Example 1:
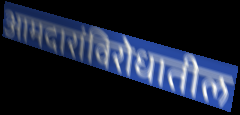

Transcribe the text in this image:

आमदारांविरोधातील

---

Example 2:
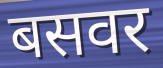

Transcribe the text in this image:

बसवर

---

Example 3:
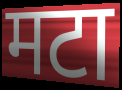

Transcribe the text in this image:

मटा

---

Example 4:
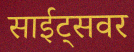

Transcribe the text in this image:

साईट्सवर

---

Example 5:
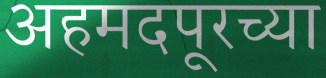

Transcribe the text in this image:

अहमदपूरच्या